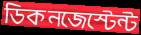
ডিকনজেস্টেন্ট